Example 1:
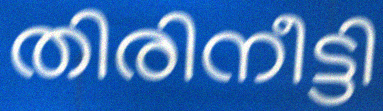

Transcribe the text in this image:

തിരിനീട്ടി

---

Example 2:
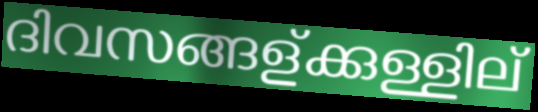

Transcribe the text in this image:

ദിവസങ്ങള്ക്കുള്ളില്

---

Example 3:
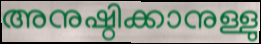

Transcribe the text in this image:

അനുഷ്ഠിക്കാനുള്ളു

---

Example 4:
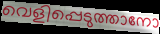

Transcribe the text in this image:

വെളിപ്പെടുത്താനോ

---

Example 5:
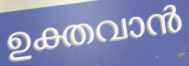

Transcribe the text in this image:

ഉക്തവാൻ